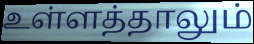
உள்ளத்தாலும்